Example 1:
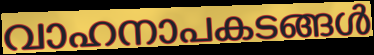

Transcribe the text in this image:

വാഹനാപകടങ്ങൾ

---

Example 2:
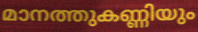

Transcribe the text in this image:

മാനത്തുകണ്ണിയും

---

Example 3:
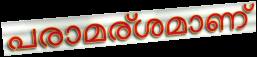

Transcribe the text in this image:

പരാമര്ശമാണ്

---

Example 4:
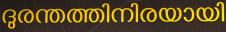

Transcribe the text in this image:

ദുരന്തത്തിനിരയായി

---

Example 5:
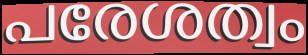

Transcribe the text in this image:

പരേശത്വം